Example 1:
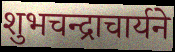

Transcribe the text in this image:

शुभचन्द्राचार्यने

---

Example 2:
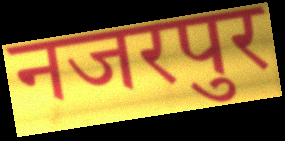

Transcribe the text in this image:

नजरपुर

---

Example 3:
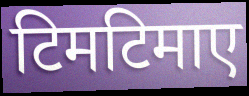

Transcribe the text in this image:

टिमटिमाए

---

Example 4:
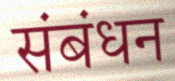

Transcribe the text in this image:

संबंधन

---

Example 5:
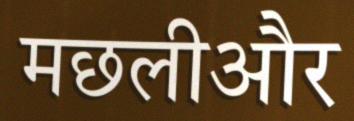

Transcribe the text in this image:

मछलीऔर